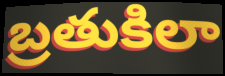
బ్రతుకిలా